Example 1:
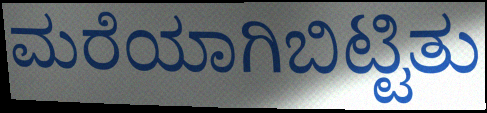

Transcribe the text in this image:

ಮರೆಯಾಗಿಬಿಟ್ಟಿತು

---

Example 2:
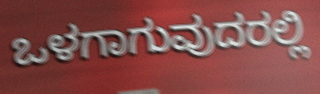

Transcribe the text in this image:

ಒಳಗಾಗುವುದರಲ್ಲಿ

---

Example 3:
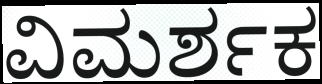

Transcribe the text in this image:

ವಿಮರ್ಶಕ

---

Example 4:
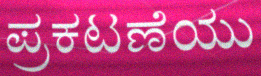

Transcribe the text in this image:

ಪ್ರಕಟಣೆಯು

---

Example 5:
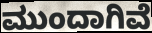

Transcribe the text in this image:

ಮುಂದಾಗಿವೆ